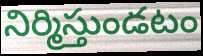
నిర్మిస్తుండటం